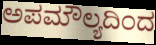
ಅಪಮೌಲ್ಯದಿಂದ